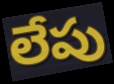
లేపు